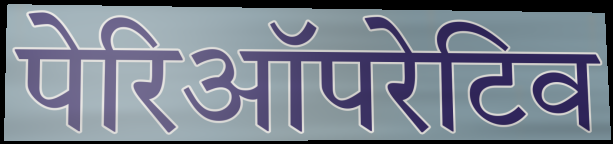
पेरिऑपरेटिव